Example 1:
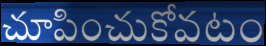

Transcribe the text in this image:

చూపించుకోవటం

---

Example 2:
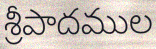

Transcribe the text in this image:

శ్రీపాదముల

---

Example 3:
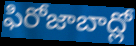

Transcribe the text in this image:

ఫిరోజాబాద్లో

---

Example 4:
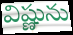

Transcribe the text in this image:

విష్ణును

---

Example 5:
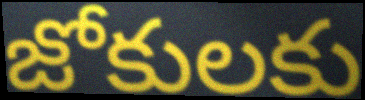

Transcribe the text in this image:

జోకులకు